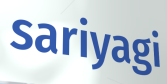
sariyagi